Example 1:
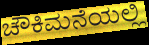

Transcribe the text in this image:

ಚೌಕಿಮನೆಯಲ್ಲಿ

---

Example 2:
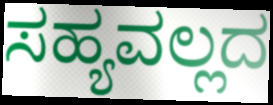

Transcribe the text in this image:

ಸಹ್ಯವಲ್ಲದ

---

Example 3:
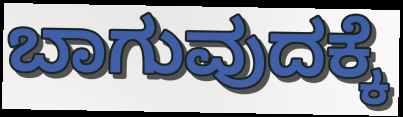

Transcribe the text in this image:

ಬಾಗುವುದಕ್ಕೆ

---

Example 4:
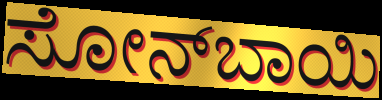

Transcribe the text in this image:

ಸೋನ್‍ಬಾಯಿ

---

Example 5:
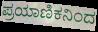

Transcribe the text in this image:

ಪ್ರಯಾಣಿಕನಿಂದ